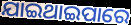
ଯାଇଥାଇପାରେ